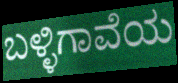
ಬಳ್ಳಿಗಾವೆಯ